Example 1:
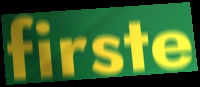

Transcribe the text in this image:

firste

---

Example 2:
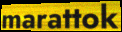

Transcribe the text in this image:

marattok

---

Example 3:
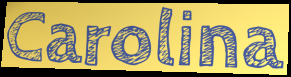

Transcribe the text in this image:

Carolina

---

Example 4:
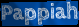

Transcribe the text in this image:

Pappiah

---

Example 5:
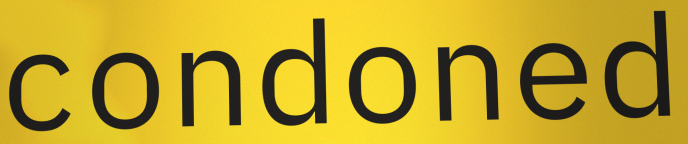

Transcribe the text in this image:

condoned